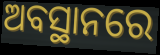
ଅବସ୍ଥାନରେ